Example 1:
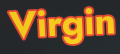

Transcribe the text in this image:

Virgin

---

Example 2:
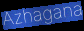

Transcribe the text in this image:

Azhagana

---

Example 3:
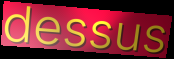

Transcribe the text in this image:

dessus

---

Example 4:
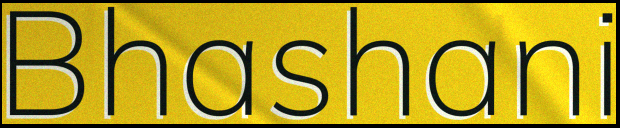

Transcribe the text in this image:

Bhashani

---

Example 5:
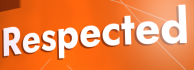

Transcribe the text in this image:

Respected